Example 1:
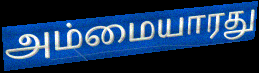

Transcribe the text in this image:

அம்மையாரது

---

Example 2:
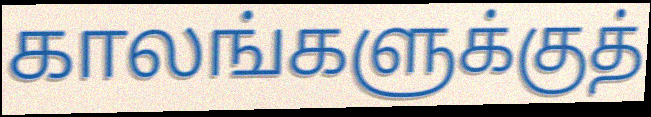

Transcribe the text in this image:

காலங்களுக்குத்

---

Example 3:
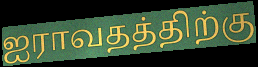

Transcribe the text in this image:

ஐராவதத்திற்கு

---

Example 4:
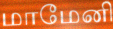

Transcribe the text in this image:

மாமேனி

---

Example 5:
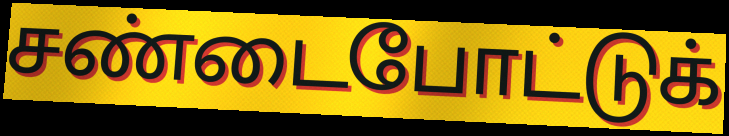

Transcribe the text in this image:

சண்டைபோட்டுக்